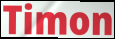
Timon